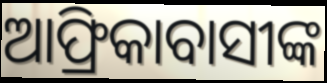
ଆଫ୍ରିକାବାସୀଙ୍କ